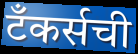
टँकर्सची